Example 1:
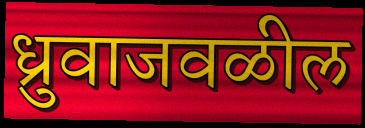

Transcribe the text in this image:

ध्रुवाजवळील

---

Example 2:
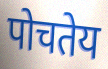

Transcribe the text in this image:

पोचतेय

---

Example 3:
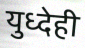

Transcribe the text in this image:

युध्देही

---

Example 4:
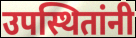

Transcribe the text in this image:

उपस्थितांनी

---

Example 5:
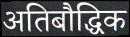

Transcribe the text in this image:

अतिबौद्धिक